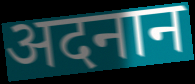
अदनान